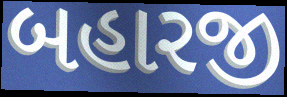
બહારજી